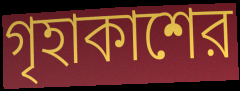
গৃহাকাশের